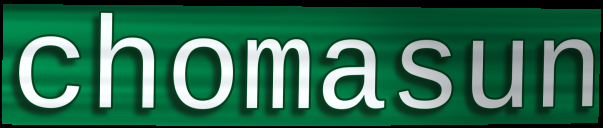
chomasun